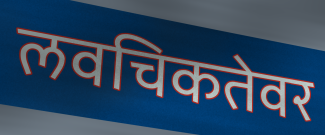
लवचिकतेवर